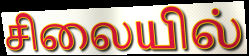
சிலையில்